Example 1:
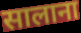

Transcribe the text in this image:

सालाना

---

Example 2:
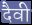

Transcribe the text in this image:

दैवी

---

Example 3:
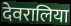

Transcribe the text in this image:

देवरालिया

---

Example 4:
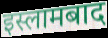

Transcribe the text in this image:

इस्लामबाद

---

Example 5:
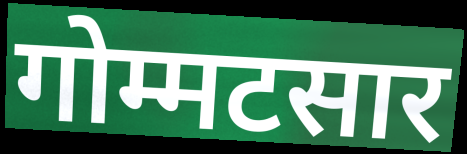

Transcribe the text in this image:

गोम्मटसार